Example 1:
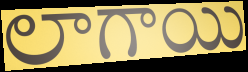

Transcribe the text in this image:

లాగాయి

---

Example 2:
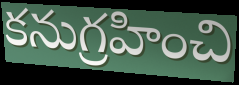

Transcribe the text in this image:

కనుగ్రహించి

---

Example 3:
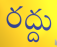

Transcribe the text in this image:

రద్దు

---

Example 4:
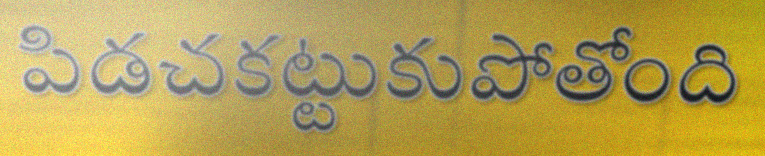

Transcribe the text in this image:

పిడచకట్టుకుపోతోంది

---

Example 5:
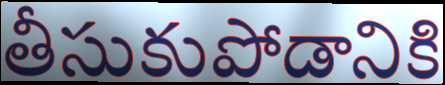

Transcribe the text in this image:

తీసుకుపోడానికి